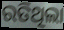
ରତିଥିଲା